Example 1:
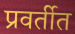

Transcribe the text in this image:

प्रवर्तीत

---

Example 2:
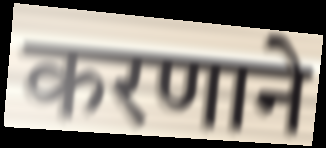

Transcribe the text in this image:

करणाने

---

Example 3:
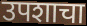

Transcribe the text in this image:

उपशाचा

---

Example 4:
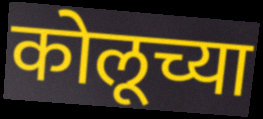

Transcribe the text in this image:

कोलूच्या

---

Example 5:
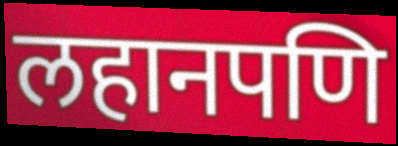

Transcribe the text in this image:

लहानपणि